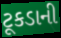
ટૂકડાની